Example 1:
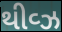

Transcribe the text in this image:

થીવ્ઝ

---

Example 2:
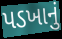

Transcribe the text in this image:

પડખાનું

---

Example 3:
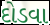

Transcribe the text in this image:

દોડવા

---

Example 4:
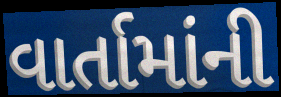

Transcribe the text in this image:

વાર્તામાંની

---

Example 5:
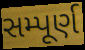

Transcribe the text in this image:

સમ્પૂર્ણ